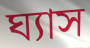
ঘ্যাস